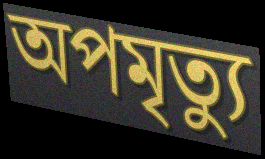
অপমৃত্যু